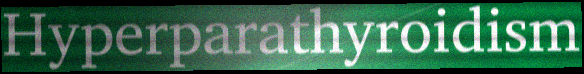
Hyperparathyroidism